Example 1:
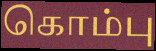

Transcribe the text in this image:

கொம்பு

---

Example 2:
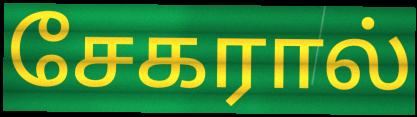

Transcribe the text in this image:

சேகரால்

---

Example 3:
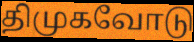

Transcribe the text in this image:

திமுகவோடு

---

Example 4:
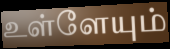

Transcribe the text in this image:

உள்ளேயும்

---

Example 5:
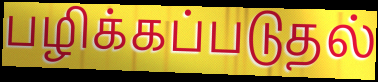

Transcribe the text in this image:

பழிக்கப்படுதல்